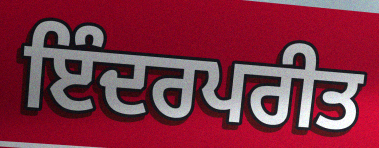
ਇੰਦਰਪਰੀਤ